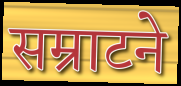
सम्राटने